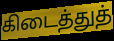
கிடைத்துத்